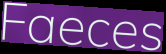
Faeces